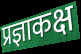
प्रज्ञाकक्ष